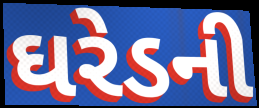
ઘરેડની